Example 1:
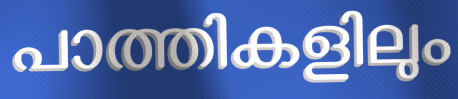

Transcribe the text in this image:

പാത്തികളിലും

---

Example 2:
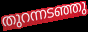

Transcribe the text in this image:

തുറന്നടഞ്ഞു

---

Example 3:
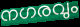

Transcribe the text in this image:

നഗരവും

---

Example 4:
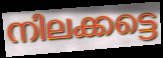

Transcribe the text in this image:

നിലക്കട്ടെ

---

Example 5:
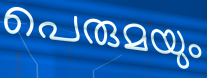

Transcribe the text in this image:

പെരുമയും